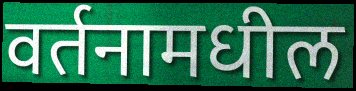
वर्तनामधील